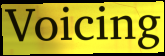
Voicing